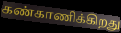
கண்காணிக்கிறது